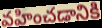
వహించడానికి